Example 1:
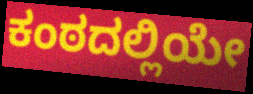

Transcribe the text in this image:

ಕಂಠದಲ್ಲಿಯೇ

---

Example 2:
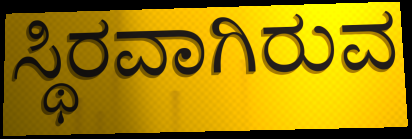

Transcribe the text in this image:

ಸ್ಥಿರವಾಗಿರುವ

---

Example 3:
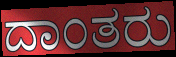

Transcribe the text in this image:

ದಾಂತರು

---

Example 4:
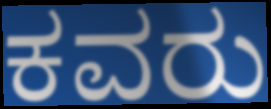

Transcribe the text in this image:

ಕವರು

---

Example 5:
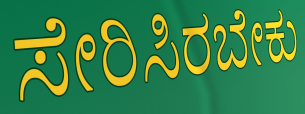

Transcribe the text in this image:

ಸೇರಿಸಿರಬೇಕು